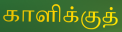
காளிக்குத்